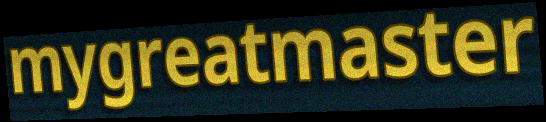
mygreatmaster